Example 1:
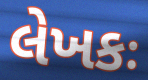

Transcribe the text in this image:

લેખકઃ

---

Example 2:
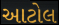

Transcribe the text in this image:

આટોલ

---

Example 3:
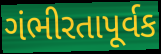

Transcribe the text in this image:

ગંભીરતાપૂર્વક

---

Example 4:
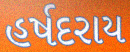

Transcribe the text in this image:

હર્ષદરાય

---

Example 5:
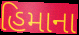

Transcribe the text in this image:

હિમાના